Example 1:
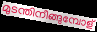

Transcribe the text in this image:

മുടന്തിനീങ്ങുമ്പോള്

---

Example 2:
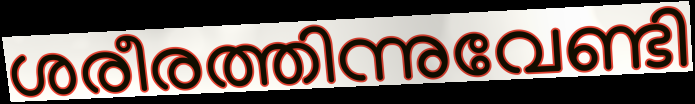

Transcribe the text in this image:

ശരീരത്തിന്നുവേണ്ടി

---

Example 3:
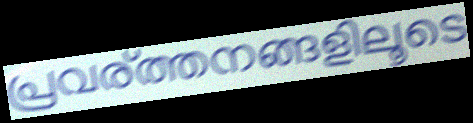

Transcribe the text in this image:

പ്രവര്ത്തനങ്ങളിലൂടെ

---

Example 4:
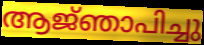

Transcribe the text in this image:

ആജ്‌ഞാപിച്ചു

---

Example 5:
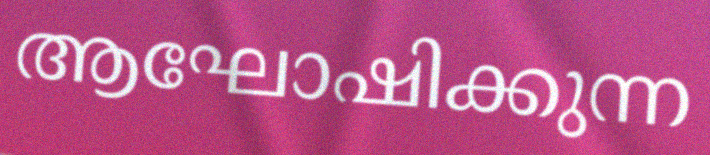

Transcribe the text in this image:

ആഘോഷിക്കുന്ന